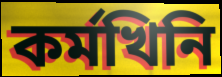
কৰ্মখিনি